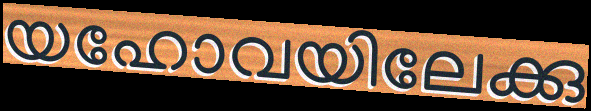
യഹോവയിലേക്കു